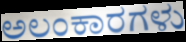
ಅಲಂಕಾರಗಳು